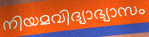
നിയമവിദ്യാഭ്യാസം